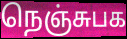
நெஞ்சுபக